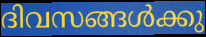
ദിവസങ്ങൾക്കു